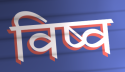
विष्व